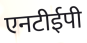
एनटीईपी